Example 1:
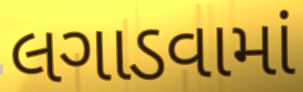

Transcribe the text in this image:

લગાડવામાં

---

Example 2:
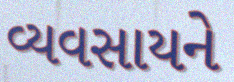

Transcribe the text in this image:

વ્યવસાયને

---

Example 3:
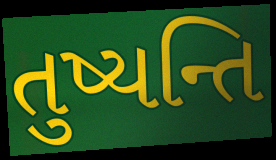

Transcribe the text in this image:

તુષ્યન્તિ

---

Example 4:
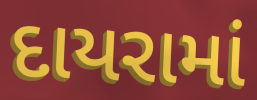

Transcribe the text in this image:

દાયરામાં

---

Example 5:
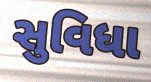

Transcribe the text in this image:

સુવિધા